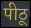
पीठू